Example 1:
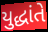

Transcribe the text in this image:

યુદ્ધાંતે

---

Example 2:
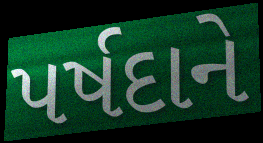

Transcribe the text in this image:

પર્ષદાને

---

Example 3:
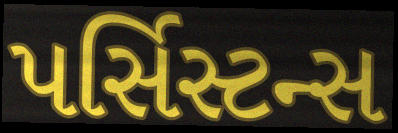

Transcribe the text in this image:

પર્સિસ્ટન્સ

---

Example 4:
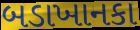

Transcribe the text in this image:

બડાખાનકા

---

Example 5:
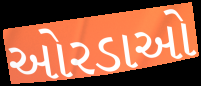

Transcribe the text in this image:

ઓરડાઓ